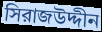
সিরাজউদ্দীন